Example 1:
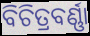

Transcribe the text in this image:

ବିଚିତ୍ରବର୍ଣ୍ଣା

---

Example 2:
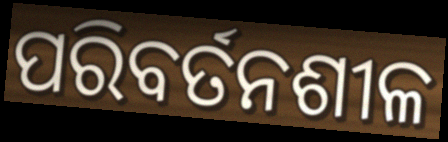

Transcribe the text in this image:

ପରିବର୍ତନଶୀଳ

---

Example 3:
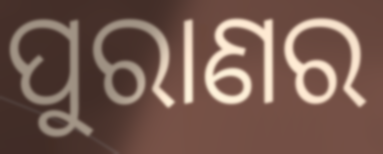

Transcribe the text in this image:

ପୁରାଣର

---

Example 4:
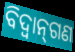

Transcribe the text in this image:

ବିଦ୍ୱାନ୍‌ଗଣ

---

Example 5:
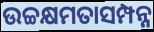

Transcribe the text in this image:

ଉଚ୍ଚକ୍ଷମତାସମ୍ପନ୍ନ